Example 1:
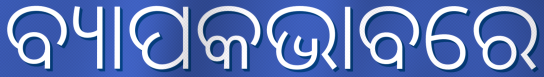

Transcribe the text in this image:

ବ୍ୟାପକଭାବରେ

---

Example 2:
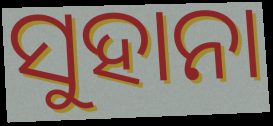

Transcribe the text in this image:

ସୁହାନା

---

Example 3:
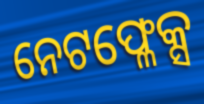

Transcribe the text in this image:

ନେଟଫ୍ଳେକ୍ସ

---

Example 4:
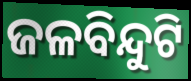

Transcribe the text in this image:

ଜଳବିନ୍ଦୁଟି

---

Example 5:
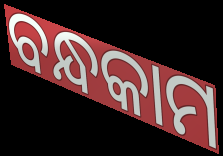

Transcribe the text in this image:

ବନ୍ଧକାମ